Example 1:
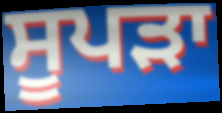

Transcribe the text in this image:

ਸੂਪੜਾ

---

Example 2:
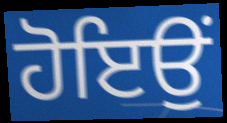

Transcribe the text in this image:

ਹੋਇਉਂ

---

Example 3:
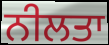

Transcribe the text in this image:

ਨੀਲਤਾ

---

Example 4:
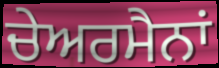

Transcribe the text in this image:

ਚੇਅਰਮੈਨਾਂ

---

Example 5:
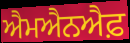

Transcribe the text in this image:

ਐਮਐਨਐਫ਼